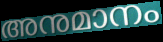
അനുമാനം